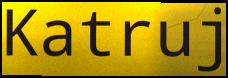
Katruj